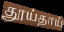
தூய்தாய்